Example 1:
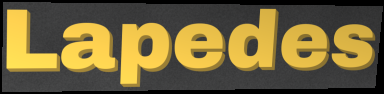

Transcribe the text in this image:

Lapedes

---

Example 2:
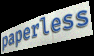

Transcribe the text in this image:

paperless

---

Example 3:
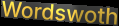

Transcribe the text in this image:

Wordswoth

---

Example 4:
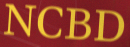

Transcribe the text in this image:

NCBD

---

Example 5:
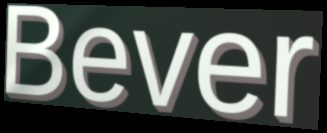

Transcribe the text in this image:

Bever